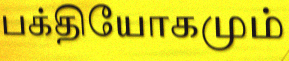
பக்தியோகமும்